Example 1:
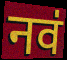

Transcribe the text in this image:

नव॑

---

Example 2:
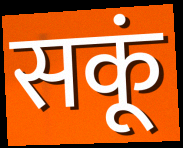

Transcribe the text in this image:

सकूं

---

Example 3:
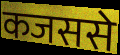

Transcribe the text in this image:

कजससे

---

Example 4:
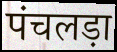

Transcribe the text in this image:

पंचलड़ा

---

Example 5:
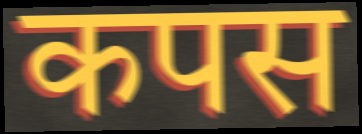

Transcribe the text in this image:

कपस